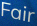
Fair